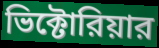
ভিক্টোরিয়ার